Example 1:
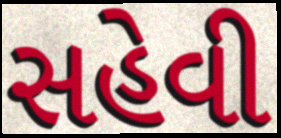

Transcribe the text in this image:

સહેવી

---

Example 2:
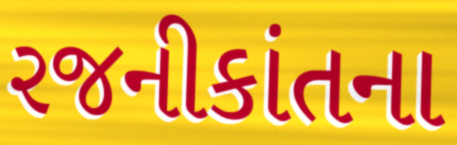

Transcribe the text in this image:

રજનીકાંતના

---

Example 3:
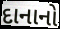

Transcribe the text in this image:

દાનાનો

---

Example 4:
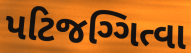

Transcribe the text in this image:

પટિજગ્ગિત્વા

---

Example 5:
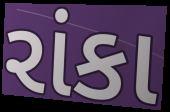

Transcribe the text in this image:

રાંકા